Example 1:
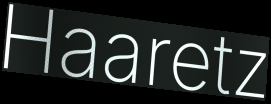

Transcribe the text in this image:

Haaretz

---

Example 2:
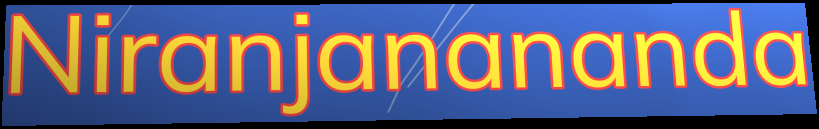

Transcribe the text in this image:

Niranjanananda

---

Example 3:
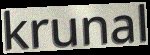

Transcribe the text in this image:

krunal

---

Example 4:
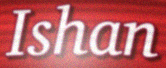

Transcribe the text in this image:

Ishan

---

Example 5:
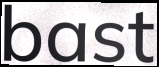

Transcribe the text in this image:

bast